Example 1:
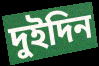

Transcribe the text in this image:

দুইদিন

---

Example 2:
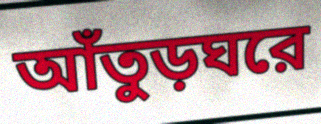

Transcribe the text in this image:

আঁতুড়ঘরে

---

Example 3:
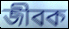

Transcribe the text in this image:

জীবক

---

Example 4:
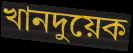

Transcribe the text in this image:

খানদুয়েক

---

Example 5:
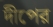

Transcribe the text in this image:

দীপের